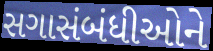
સગાસંબંધીઓને